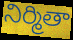
నిర్మితా